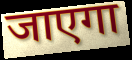
जाएगा